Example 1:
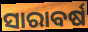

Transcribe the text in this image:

ସାରାବର୍ଷ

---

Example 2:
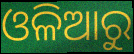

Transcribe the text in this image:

ଓଳିଆରୁ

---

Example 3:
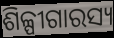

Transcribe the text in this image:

ଶିଳ୍ପୀଗାରସ୍ୟ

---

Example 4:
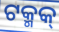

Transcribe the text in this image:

ଟକ୍ମକ୍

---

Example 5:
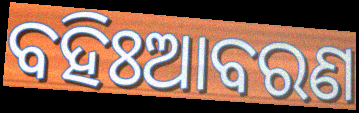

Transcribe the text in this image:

ବହିଃଆବରଣ